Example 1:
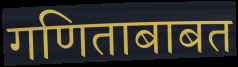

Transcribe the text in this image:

गणिताबाबत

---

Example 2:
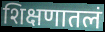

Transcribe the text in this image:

शिक्षणातलं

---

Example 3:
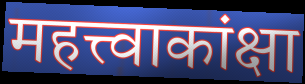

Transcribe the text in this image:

महत्त्वाकांक्षा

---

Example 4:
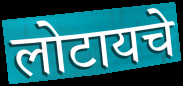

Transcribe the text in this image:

लोटायचे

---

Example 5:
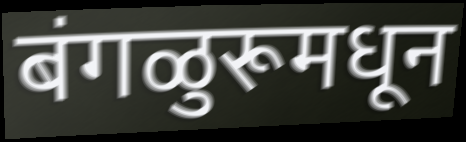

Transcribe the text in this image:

बंगळुरूमधून